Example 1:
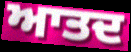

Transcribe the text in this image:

ਆਤਦ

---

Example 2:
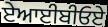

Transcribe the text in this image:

ਏਆਈਬੀਓਏ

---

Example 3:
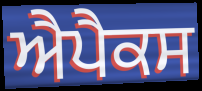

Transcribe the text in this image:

ਐਪੈਕਸ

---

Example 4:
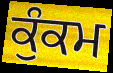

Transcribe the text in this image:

ਕੁੰਕਮ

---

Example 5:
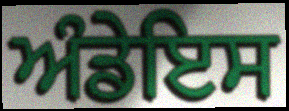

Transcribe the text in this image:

ਅੰਡੇਇਸ